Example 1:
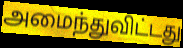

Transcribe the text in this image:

அமைந்துவிட்டது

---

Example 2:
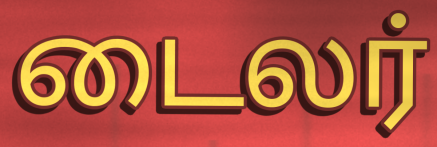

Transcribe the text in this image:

டைலர்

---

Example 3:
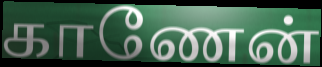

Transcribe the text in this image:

காணேன்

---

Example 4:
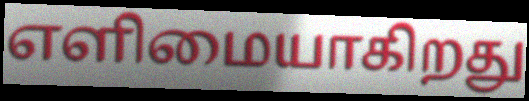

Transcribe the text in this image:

எளிமையாகிறது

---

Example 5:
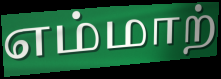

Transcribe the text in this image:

எம்மாற்